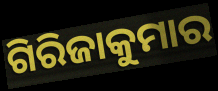
ଗିରିଜାକୁମାର